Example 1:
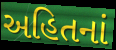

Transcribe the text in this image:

અહિતનાં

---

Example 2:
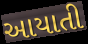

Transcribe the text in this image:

આયાતી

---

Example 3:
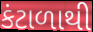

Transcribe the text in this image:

કંટાળાથી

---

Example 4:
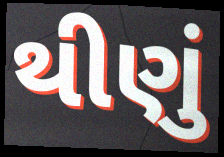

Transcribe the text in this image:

થીણું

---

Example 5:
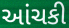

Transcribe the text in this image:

આંચકી